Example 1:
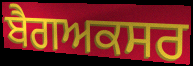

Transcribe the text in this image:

ਬੈਗਅਕਸਰ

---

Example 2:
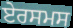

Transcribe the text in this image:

ਏਰਸਮਸ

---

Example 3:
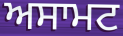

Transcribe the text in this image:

ਅਸਾਮਟ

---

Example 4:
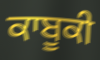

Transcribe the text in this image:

ਕਾਬੂਕੀ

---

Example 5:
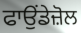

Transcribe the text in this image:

ਫਾਉਂਡੇਜ਼ੋਲ